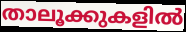
താലൂക്കുകളിൽ